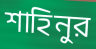
শাহিনুর